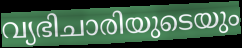
വ്യഭിചാരിയുടെയും